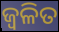
ଜ୍ୱଳିତ